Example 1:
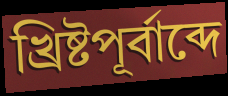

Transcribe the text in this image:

খ্রিষ্টপূর্বাব্দে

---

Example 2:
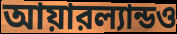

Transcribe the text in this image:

আয়ারল্যান্ডও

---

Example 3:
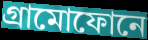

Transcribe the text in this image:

গ্রামোফোনে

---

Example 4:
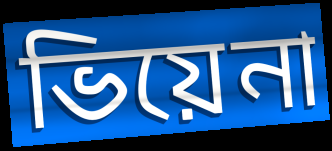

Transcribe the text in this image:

ভিয়েনা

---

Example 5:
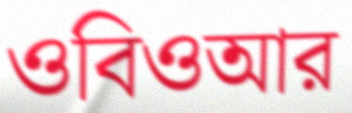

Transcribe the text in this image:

ওবিওআর